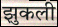
झुकली